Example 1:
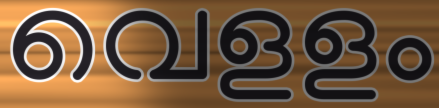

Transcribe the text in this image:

വെളളം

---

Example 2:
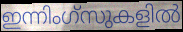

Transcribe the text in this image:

ഇന്നിംഗ്സുകളിൽ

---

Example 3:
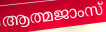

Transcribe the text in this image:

ആത്മജാംസ്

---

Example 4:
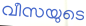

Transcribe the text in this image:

വീസയുടെ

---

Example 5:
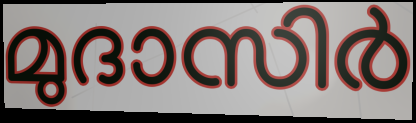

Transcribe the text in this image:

മുദാസിർ